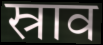
स्राव